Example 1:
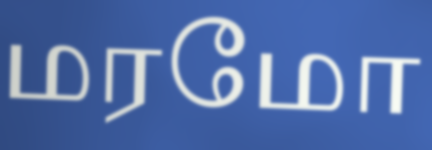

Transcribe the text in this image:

மரமோ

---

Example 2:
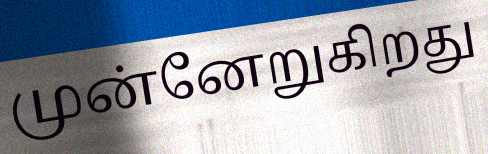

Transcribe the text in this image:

முன்னேறுகிறது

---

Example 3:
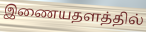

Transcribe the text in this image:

இணையதளத்தில்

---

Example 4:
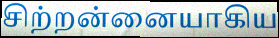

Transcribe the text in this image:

சிற்றன்னையாகிய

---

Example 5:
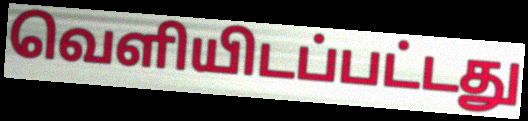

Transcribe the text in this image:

வெளியிடப்பட்டது